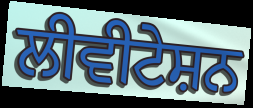
ਲੀਵੀਟੇਸ਼ਨ